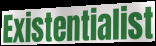
Existentialist